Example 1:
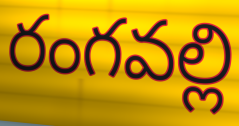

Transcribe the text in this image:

రంగవల్లి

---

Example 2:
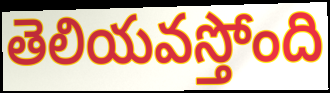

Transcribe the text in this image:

తెలియవస్తోంది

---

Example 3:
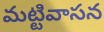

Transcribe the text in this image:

మట్టివాసన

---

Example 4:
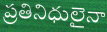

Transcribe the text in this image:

ప్రతినిధులైనా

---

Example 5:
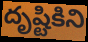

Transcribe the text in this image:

దృష్టికిని